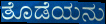
ತೊಡೆಯನು